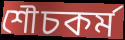
শৌচকর্ম